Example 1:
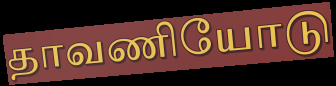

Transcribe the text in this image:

தாவணியோடு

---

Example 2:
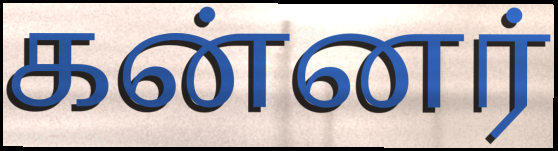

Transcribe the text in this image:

கன்னர்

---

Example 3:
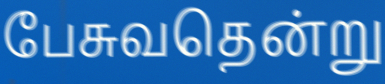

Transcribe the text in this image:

பேசுவதென்று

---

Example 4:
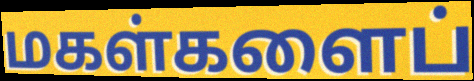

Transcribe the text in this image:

மகள்களைப்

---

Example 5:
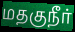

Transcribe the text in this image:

மதகுநீர்